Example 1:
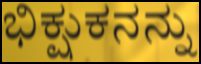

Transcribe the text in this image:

ಭಿಕ್ಷುಕನನ್ನು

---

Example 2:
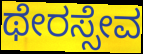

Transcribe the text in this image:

ಥೇರಸ್ಸೇವ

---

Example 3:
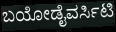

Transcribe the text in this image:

ಬಯೋಡೈವರ್ಸಿಟಿ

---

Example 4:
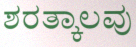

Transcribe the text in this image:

ಶರತ್ಕಾಲವು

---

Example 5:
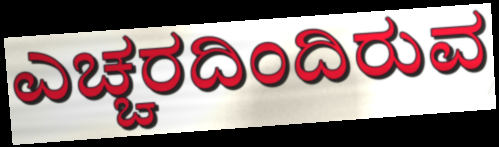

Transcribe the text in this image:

ಎಚ್ಚರದಿಂದಿರುವ